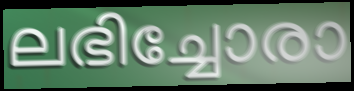
ലഭിച്ചോരാ